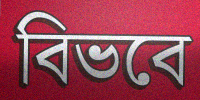
বিভবে